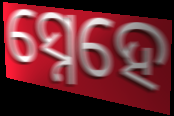
ସ୍ନେହେ